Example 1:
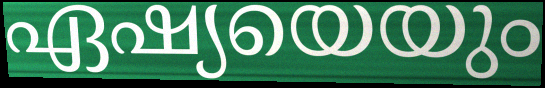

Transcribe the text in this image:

ഏഷ്യയെയും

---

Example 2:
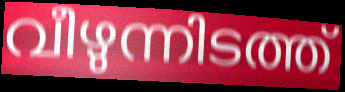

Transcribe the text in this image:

വീഴുന്നിടത്ത്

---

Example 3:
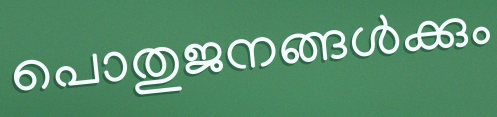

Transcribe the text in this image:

പൊതുജനങ്ങൾക്കും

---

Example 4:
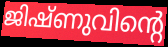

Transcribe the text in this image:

ജിഷ്ണുവിന്റെ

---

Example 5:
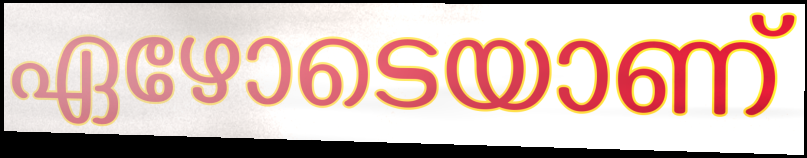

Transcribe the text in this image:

ഏഴോടെയാണ്